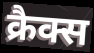
क्रैक्स